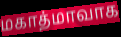
மகாத்மாவாக